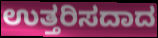
ಉತ್ತರಿಸದಾದ